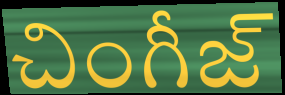
చింగీజ్